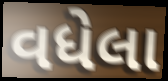
વધેલા